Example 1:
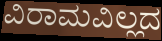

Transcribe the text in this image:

ವಿರಾಮವಿಲ್ಲದ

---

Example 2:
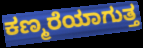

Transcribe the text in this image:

ಕಣ್ಮರೆಯಾಗುತ್ತ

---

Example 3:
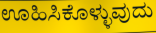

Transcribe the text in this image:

ಊಹಿಸಿಕೊಳ್ಳುವುದು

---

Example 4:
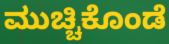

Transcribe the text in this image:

ಮುಚ್ಚಿಕೊಂಡೆ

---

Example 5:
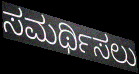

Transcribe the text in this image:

ಸಮರ್ಥಿಸಲು